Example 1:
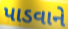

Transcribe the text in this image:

પાડવાને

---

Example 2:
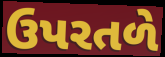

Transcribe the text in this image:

ઉપરતળે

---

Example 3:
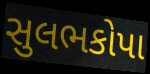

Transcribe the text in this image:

સુલભકોપા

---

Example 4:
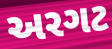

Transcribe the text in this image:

અરગટ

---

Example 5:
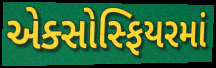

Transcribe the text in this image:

એક્સોસ્ફિયરમાં